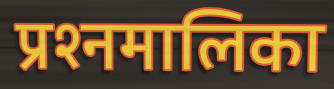
प्रश्नमालिका